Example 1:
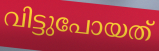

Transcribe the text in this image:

വിട്ടുപോയത്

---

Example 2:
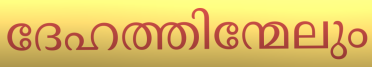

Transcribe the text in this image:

ദേഹത്തിന്മേലും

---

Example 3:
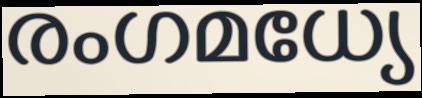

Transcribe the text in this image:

രംഗമധ്യേ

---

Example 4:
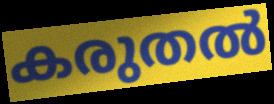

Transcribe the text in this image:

കരുതൽ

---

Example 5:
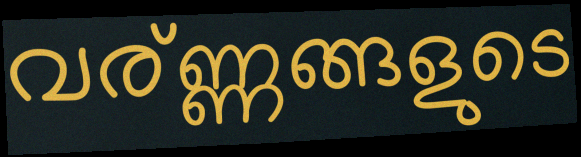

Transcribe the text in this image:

വര്ണ്ണങ്ങളുടെ